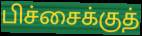
பிச்சைக்குத்